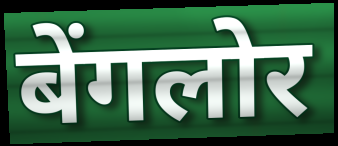
बेंगलोर